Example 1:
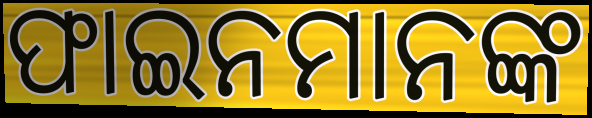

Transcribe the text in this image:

ଫାଇନମାନଙ୍କ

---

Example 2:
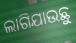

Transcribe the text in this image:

ଲାଗିଯାଉଛୁ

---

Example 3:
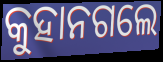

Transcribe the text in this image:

କୁହାନଗଲେ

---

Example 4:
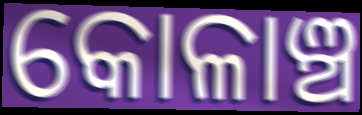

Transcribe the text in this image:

କୋଳାଞ୍ଚ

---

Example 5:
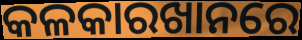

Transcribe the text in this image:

କଳକାରଖାନରେ